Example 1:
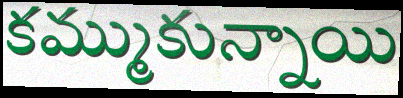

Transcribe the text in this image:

కమ్ముకున్నాయి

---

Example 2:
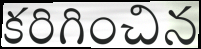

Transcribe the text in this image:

కరిగించిన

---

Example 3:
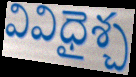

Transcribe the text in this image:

వివిధైశ్చ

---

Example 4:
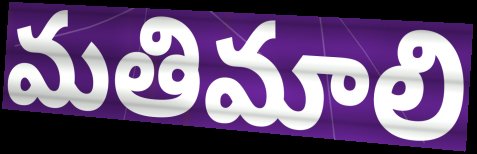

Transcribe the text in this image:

మతిమాలి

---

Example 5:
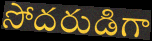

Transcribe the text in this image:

సోదరుడిగా